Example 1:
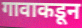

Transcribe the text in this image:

गावाकडून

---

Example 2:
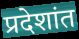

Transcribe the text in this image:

प्रदेशांत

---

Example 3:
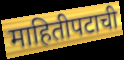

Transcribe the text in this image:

माहितीपटाची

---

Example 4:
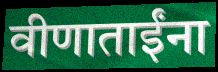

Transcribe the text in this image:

वीणाताईंना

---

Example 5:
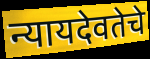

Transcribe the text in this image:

न्यायदेवतेचे